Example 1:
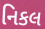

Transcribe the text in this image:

નિકલ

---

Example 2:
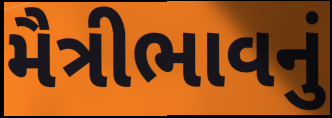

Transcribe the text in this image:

મૈત્રીભાવનું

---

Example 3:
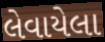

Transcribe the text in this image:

લેવાયેલા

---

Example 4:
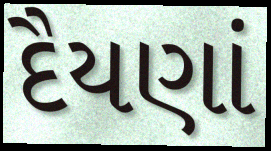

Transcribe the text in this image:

દૈયણાં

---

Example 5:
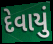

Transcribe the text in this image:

દેવાયું